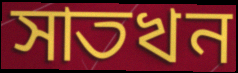
সাতখন